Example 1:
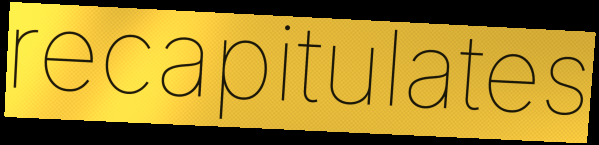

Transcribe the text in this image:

recapitulates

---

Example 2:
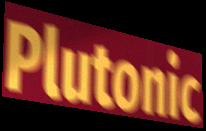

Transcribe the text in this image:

Plutonic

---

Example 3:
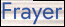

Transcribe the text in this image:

Frayer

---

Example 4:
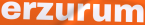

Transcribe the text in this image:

erzurum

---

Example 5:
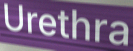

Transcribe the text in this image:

Urethra